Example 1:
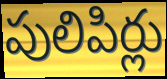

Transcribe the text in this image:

పులిపిర్లు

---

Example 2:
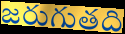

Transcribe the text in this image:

జరుగుతది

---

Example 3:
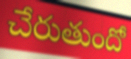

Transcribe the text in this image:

చేరుతుందో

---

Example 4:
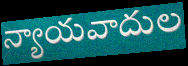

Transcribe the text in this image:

న్యాయవాదుల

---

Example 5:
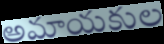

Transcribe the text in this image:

అమాయకుల